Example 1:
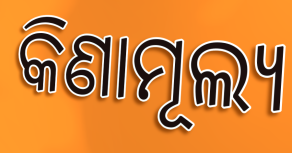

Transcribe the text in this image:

କିଣାମୂଲ୍ୟ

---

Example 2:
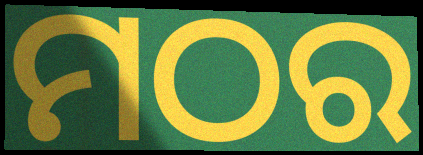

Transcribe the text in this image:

ମଠର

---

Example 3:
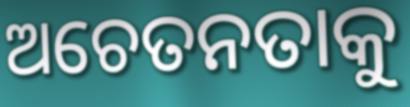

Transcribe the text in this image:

ଅଚେତନତାକୁ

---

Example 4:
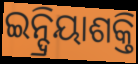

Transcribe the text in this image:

ଇନ୍ଦ୍ରିୟାଶକ୍ତି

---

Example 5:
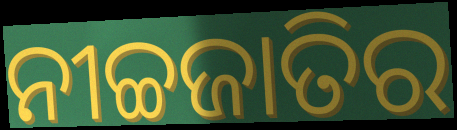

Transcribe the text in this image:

ନୀଚ୍ଚଜାତିର